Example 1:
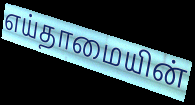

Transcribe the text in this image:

எய்தாமையின்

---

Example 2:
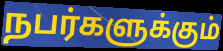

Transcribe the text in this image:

நபர்களுக்கும்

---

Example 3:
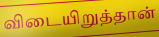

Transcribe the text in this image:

விடையிறுத்தான்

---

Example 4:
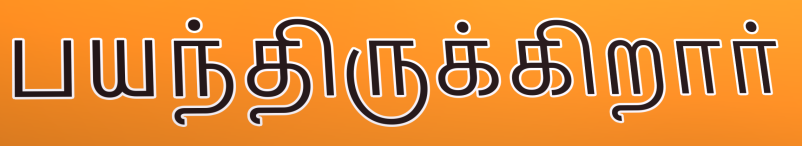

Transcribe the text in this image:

பயந்திருக்கிறார்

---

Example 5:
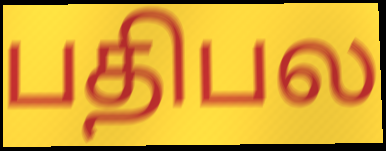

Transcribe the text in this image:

பதிபல